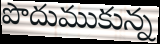
పొదుముకున్న